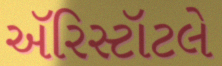
ઍરિસ્ટૉટલે